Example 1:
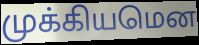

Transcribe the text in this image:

முக்கியமென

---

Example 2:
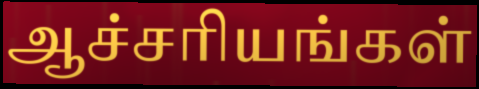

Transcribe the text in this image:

ஆச்சரியங்கள்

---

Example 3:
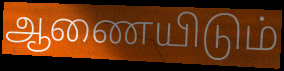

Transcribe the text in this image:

ஆணையிடும்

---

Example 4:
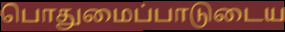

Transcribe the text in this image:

பொதுமைப்பாடுடைய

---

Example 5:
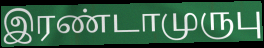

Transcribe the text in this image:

இரண்டாமுருபு